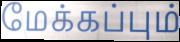
மேக்கப்பும்